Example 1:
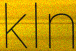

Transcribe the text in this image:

kln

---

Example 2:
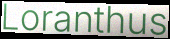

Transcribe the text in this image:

Loranthus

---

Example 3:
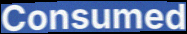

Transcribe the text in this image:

Consumed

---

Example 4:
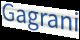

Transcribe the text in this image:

Gagrani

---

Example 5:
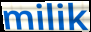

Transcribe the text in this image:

milik